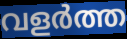
വളർത്ത